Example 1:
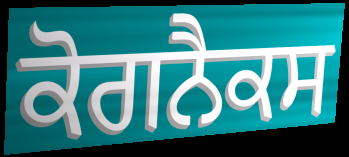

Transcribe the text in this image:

ਕੋਗਨੈਕਸ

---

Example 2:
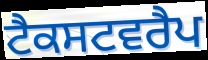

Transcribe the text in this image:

ਟੈਕਸਟਵਰੈਪ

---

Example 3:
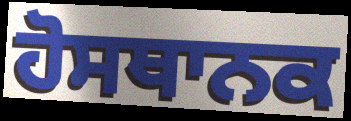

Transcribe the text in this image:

ਹੋਸਥਾਨਕ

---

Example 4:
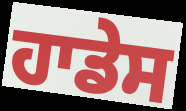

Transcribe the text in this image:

ਹਾਡੇਸ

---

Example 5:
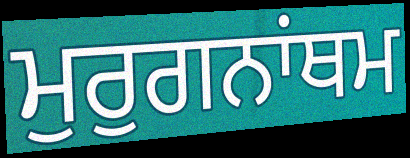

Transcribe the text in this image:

ਮੁਰੁਗਨਾਂਥਮ